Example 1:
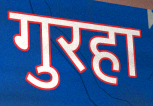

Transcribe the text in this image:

गुरहा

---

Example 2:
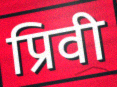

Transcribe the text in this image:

प्रिवी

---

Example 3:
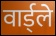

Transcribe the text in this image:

वार्ड्ले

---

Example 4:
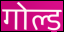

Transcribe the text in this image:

गोल्‍ड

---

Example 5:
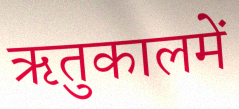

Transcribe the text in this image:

ऋतुकालमें